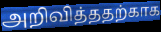
அறிவித்ததற்காக